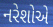
નરેશોએ